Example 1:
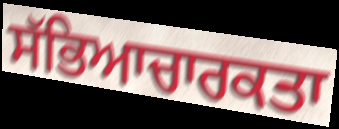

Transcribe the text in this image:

ਸੱਭਿਆਚਾਰਕਤਾ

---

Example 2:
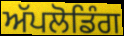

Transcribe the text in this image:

ਅੱਪਲੋਡਿੰਗ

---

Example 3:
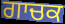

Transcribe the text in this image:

ਗਾਚਕ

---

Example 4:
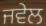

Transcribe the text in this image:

ਜਵੇਲ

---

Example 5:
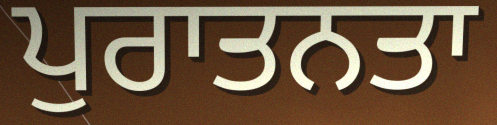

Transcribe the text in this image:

ਪੁਰਾਤਨਤਾ